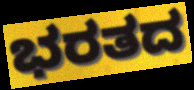
ಭರತದ